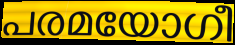
പരമയോഗീ